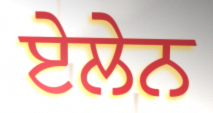
ਏਲੇਨ